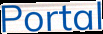
Portal